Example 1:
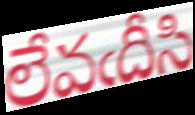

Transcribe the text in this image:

లేవఁదీసి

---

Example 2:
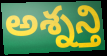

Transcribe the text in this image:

అశ్నన్తి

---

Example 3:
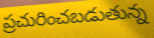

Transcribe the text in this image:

ప్రచురించబడుతున్న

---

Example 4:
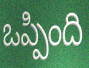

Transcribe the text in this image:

ఒప్పింది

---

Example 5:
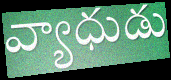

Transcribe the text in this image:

వ్యాధుడు